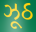
ઝૂઠ